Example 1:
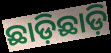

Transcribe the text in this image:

ଛାଡ଼ିଛାଡ଼ି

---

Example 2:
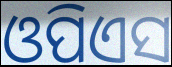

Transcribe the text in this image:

ଓପିଏସ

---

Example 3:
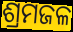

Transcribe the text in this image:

ଶ୍ରମଜଳ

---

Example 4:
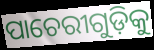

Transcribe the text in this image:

ପାଚେରୀଗୁଡ଼ିକୁ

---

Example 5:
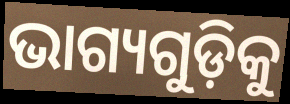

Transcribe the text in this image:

ଭାଗ୍ୟଗୁଡ଼ିକୁ